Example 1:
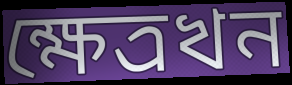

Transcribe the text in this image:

ক্ষেত্ৰখন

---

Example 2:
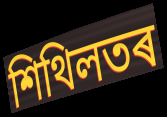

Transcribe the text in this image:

শিথিলতৰ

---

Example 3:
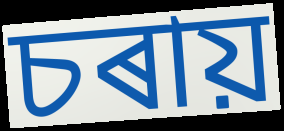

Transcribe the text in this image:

চৰায়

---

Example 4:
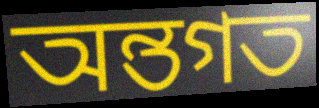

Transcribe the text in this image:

অন্তগত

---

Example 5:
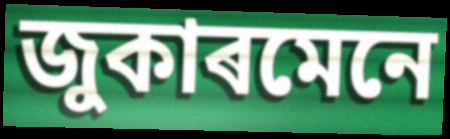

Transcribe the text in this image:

জুকাৰমেনে